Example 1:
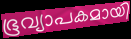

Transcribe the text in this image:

ഭൂവ്യാപകമായി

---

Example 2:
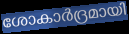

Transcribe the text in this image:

ശോകാർദ്രമായി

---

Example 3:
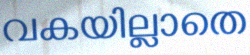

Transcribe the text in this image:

വകയില്ലാതെ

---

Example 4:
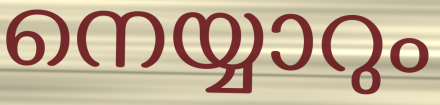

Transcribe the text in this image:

നെയ്യാറും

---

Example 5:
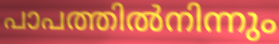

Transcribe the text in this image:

പാപത്തിൽനിന്നും